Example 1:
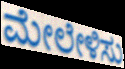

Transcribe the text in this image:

ಮೇಲೇಳಿಸು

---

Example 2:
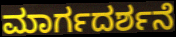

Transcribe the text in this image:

ಮಾರ್ಗದರ್ಶನೆ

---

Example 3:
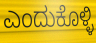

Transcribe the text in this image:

ಎಂದುಕೊಳ್ಳಿ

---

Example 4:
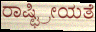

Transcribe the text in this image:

ರಾಷ್ಟ್ರೀಯತೆ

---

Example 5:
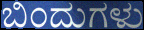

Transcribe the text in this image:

ಬಿಂದುಗಳು